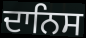
ਦਾਨਿਸ